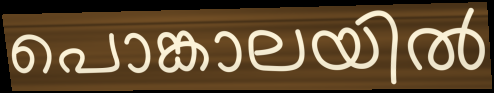
പൊങ്കാലയിൽ